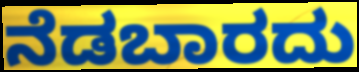
ನೆಡಬಾರದು